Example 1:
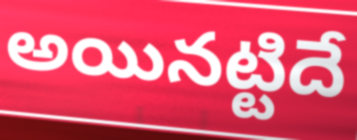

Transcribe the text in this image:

అయినట్టిదే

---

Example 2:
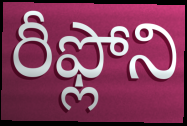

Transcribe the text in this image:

రీఫ్లోని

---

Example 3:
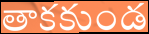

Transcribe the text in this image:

తాకకుండ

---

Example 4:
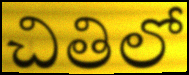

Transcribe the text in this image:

చితిలో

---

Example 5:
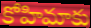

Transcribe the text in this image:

కోహిమాకు